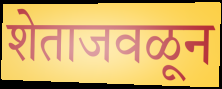
शेताजवळून